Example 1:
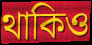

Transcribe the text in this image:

থাকিও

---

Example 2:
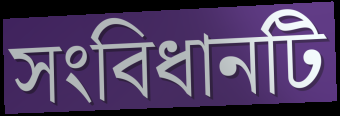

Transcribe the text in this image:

সংবিধানটি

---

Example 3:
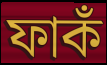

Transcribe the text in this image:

ফাকঁ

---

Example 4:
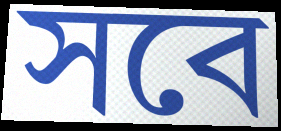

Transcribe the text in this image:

সবে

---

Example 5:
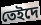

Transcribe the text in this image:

তেইদে